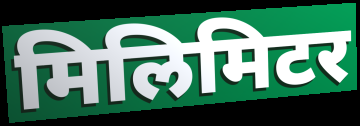
मिलिमिटर